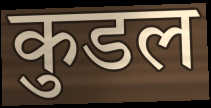
कुडल